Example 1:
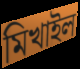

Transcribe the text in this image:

মিখাইল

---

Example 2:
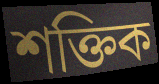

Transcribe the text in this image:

শক্তিক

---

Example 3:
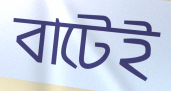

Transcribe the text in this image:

বাটেই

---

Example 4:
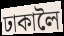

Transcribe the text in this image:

ঢাকালৈ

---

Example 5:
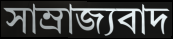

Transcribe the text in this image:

সাম্ৰাজ্যবাদ